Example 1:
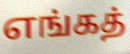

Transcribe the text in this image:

எங்கத்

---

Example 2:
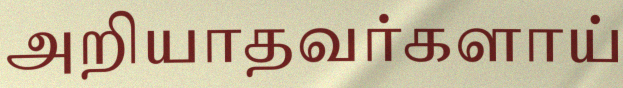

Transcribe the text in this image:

அறியாதவர்களாய்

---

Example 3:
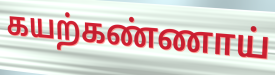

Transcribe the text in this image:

கயற்கண்ணாய்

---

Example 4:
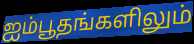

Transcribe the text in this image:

ஐம்பூதங்களிலும்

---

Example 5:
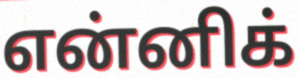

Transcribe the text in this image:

என்னிக்